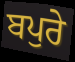
ਬਪੁਰੇ